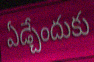
ఏడ్చేందుకు